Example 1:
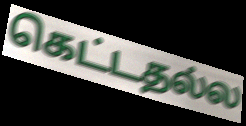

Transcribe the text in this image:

கெட்டதல்ல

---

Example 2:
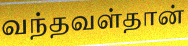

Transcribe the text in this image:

வந்தவள்தான்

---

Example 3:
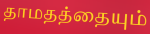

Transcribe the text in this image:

தாமதத்தையும்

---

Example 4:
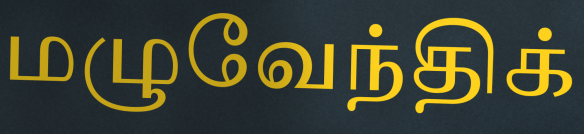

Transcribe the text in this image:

மழுவேந்திக்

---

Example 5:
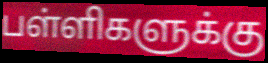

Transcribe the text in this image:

பள்ளிகளுக்கு